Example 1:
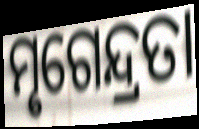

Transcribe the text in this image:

ମୃଗେନ୍ଦ୍ରତା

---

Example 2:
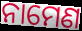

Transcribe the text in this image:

ନାମେଣ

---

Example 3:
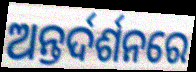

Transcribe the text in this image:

ଅନ୍ତର୍ଦର୍ଶନରେ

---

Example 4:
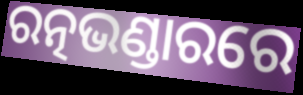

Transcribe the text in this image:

ରତ୍ନଭଣ୍ଡାରରେ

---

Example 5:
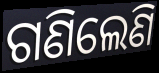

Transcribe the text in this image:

ଗଣିଲେଣି